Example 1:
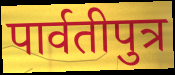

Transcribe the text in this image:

पार्वतीपुत्र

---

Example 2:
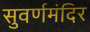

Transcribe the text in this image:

सुवर्णमंदिर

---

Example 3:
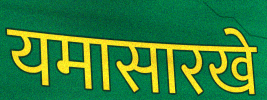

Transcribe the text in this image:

यमासारखे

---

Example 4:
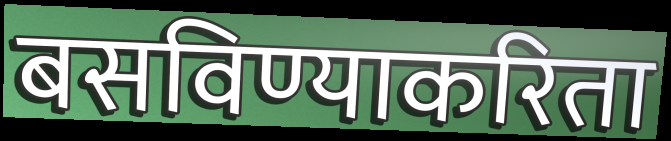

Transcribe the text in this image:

बसविण्याकरिता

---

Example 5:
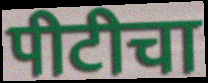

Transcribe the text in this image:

पीटीचा